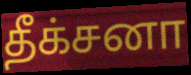
தீக்சனா